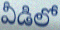
వీడిలో